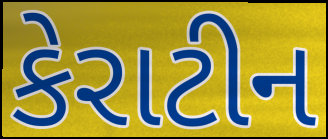
કેરાટીન